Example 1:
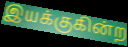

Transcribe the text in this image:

இயக்குகின்ற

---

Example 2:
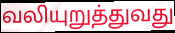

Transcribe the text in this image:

வலியுறுத்துவது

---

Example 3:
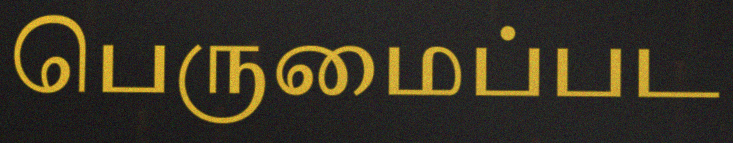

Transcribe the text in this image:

பெருமைப்பட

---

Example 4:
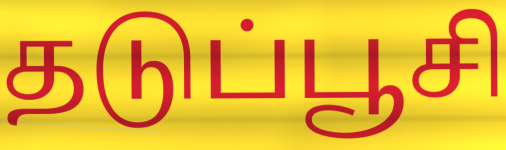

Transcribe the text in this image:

தடுப்பூசி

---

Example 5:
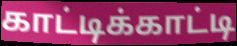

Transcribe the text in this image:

காட்டிக்காட்டி